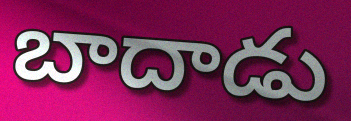
బాదాడు